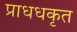
प्राधधकृत